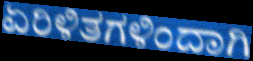
ಏರಿಳಿತಗಳಿಂದಾಗಿ